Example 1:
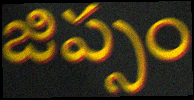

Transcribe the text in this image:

జిప్సం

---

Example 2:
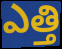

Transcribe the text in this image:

ఎత్తి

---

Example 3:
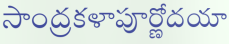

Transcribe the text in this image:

సాంద్రకళాపూర్ణోదయా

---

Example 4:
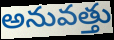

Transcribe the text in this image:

అనువత్తు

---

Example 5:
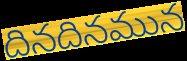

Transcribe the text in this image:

దినదినమున